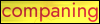
companing